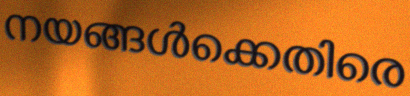
നയങ്ങൾക്കെതിരെ